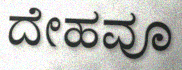
ದೇಹವೂ